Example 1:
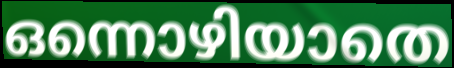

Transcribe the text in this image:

ഒന്നൊഴിയാതെ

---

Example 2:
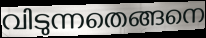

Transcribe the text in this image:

വിടുന്നതെങ്ങനെ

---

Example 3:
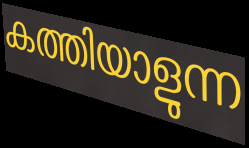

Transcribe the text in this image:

കത്തിയാളുന്ന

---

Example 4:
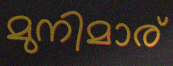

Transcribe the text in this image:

മുനിമാര്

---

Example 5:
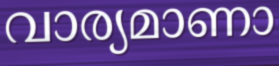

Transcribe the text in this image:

വാര്യമാണാ